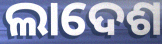
ଲାଦେଶ